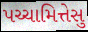
પચ્ચામિત્તેસુ